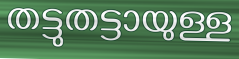
തട്ടുതട്ടായുള്ള